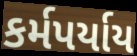
કર્મપર્યાય